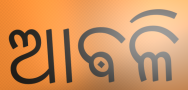
ଆଵଳି